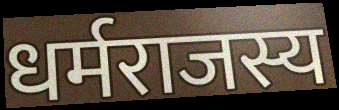
धर्मराजस्य